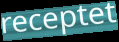
receptet